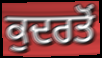
ਕੁਦਰਤੋਂ